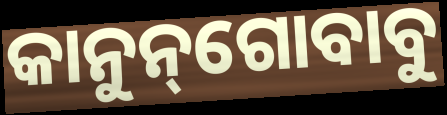
କାନୁନ୍‌ଗୋବାବୁ